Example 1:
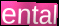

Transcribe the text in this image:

ental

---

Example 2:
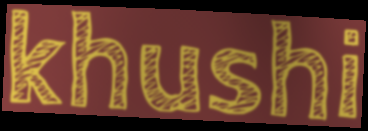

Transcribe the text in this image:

khushi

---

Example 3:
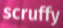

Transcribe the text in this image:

scruffy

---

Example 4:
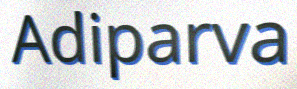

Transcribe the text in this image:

Adiparva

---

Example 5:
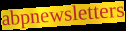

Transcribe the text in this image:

abpnewsletters